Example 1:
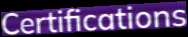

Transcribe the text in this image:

Certifications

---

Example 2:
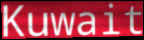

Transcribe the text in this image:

Kuwait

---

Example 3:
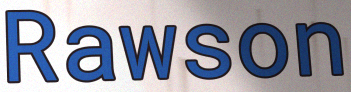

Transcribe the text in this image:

Rawson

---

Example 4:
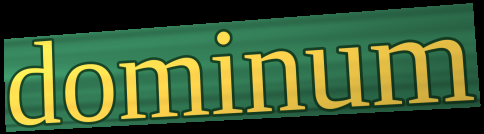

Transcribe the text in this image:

dominum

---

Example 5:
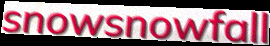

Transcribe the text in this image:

snowsnowfall